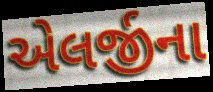
એલર્જીના